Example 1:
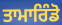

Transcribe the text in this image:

ਤਾਮਾਰਿੰਡੋ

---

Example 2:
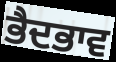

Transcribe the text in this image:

ਭੈਦਭਾਵ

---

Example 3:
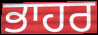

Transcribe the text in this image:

ਭਾਹਰ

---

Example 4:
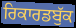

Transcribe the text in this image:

ਰਿਕਾਰਡਬੁੱਕ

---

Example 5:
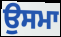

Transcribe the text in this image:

ਉਸਮਾ